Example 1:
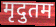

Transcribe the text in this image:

मृदुतम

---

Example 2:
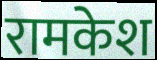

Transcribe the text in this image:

रामकेश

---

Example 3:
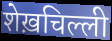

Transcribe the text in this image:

शेख़चिल्ली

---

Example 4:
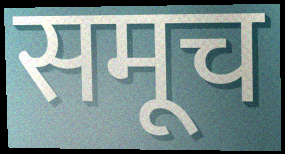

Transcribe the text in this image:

समूच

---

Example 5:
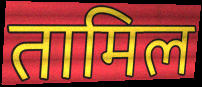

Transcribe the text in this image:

तामिल